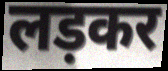
लड़कर